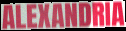
ALEXANDRIA